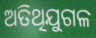
ଅତିଥିଯୁଗଳ